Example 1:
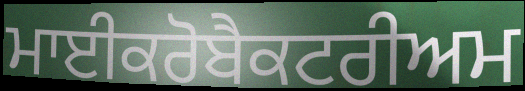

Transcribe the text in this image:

ਮਾਈਕਰੋਬੈਕਟਰੀਅਮ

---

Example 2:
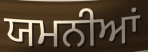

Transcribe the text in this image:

ਯਮਨੀਆਂ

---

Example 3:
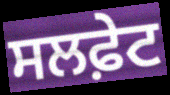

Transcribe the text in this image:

ਸਲਫ਼ੇਟ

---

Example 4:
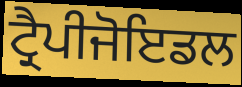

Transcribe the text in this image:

ਟ੍ਰੈਪੀਜੋਇਡਲ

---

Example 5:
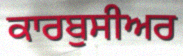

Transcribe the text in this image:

ਕਾਰਬੁਸੀਅਰ